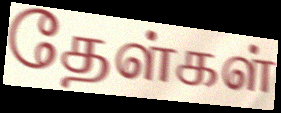
தேள்கள்